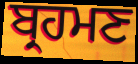
ਬ੍ਰਹਮਣ